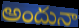
అందునా